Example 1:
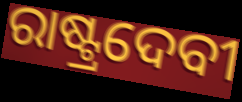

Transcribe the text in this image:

ରାଷ୍ଟ୍ରଦେବୀ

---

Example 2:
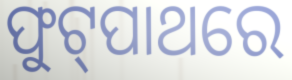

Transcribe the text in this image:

ଫୁଟ୍‍ପାଥରେ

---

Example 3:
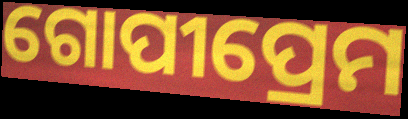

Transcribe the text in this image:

ଗୋପୀପ୍ରେମ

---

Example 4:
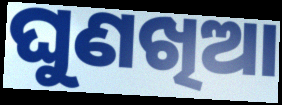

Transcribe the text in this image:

ଘୁଣଖିଆ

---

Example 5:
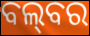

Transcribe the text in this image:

ବଲ୍‌ବର